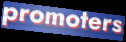
promoters